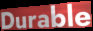
Durable